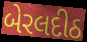
બેરલદીઠ